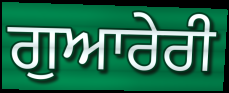
ਗੁਆਰੇਰੀ